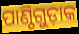
ପାଣ୍ଠିଗୁଡ଼ାକ